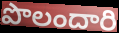
పొలందారి